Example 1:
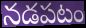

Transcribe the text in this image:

నడపటం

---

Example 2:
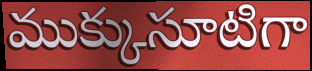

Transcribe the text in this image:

ముక్కుసూటిగా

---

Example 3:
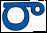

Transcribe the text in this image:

రా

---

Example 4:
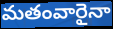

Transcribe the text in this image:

మతంవారైనా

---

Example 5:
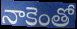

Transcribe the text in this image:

నాకెంతో